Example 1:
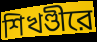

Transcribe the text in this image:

শিখণ্ডীরে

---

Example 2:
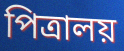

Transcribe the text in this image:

পিত্রালয়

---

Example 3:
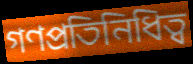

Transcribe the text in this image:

গণপ্রতিনিধিত্ব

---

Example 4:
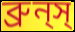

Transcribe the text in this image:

ব্রুন্‌স্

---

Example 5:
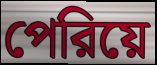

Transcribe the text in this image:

পেরিয়ে